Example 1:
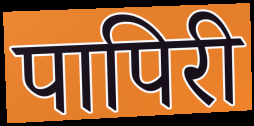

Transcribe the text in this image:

पापिरी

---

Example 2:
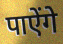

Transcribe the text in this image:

पाऐंगे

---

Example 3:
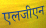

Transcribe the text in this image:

एलजीएन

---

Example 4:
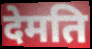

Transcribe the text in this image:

देमति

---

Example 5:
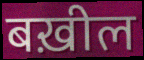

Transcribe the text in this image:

बख़ील